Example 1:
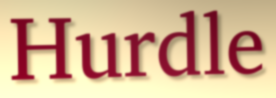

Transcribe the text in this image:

Hurdle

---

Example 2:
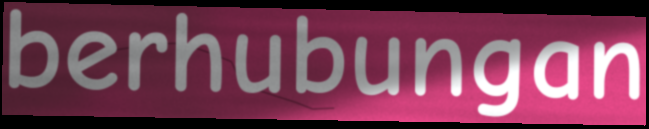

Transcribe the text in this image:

berhubungan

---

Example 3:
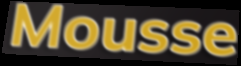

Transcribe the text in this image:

Mousse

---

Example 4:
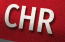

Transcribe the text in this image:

CHR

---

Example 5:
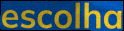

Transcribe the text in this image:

escolha